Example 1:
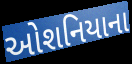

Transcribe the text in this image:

ઓશનિયાના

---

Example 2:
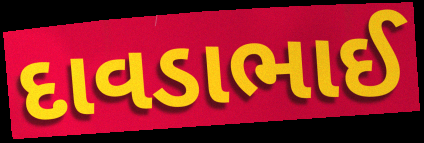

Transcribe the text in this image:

દાવડાભાઈ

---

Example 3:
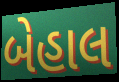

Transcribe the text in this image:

બેહાલ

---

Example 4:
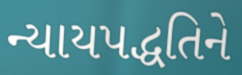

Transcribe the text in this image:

ન્યાયપદ્ધતિને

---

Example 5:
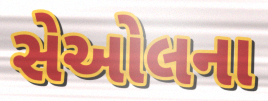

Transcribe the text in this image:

સેઓલના